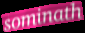
sominath